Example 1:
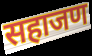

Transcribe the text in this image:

सहाजण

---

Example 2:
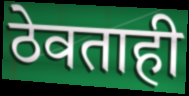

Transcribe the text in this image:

ठेवताही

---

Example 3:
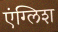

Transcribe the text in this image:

एंग्लिश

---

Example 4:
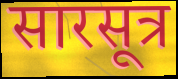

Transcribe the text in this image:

सारसूत्र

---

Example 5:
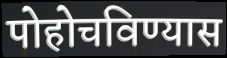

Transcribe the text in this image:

पोहोचविण्यास